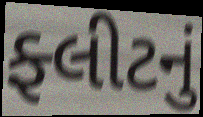
ફ્લીટનું